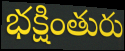
భక్షింతురు